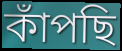
কাঁপছি